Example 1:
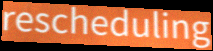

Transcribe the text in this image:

rescheduling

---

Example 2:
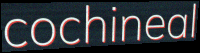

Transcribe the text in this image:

cochineal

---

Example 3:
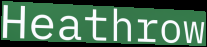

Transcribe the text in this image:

Heathrow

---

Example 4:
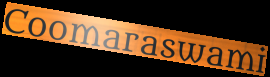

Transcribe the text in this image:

Coomaraswami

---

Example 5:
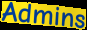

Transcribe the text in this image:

Admins